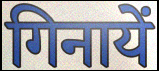
गिनायें